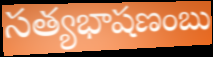
సత్యభాషణంబు